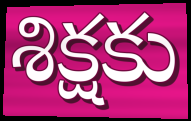
శిక్షకు